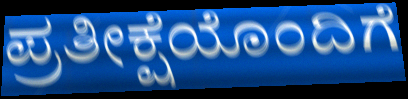
ಪ್ರತೀಕ್ಷೆಯೊಂದಿಗೆ